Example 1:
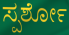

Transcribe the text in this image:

ಸ್ಪರ್ಶೋ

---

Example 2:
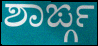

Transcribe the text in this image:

ಶಾರ್ಙ್ಗ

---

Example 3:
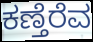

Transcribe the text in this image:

ಕಣ್ತೆರೆವ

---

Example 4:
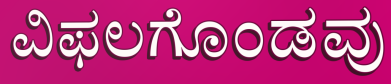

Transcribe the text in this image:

ವಿಫಲಗೊಂಡವು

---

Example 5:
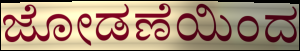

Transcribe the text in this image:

ಜೋಡಣೆಯಿಂದ